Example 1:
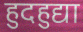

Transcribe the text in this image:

हुदहुद्या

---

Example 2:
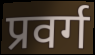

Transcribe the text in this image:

प्रवर्ग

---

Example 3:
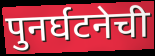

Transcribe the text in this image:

पुनर्घटनेची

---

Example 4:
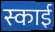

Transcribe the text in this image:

स्काई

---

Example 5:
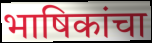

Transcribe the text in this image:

भाषिकांचा